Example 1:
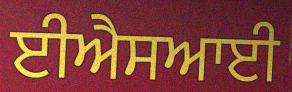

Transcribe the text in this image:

ਈਐਸਆਈ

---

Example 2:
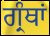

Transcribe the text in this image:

ਗ੍ਰੰਥਾਂ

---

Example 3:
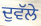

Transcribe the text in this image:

ਦੁਵੱਲੇ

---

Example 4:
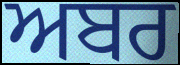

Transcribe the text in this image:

ਅਬਰ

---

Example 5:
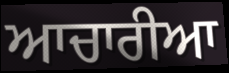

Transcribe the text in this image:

ਆਚਾਰੀਆ